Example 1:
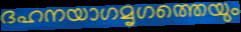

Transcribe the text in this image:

ദഹനയാഗമൃഗത്തെയും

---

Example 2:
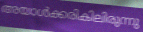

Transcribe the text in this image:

അയാൾക്കരികിലിരുന്നു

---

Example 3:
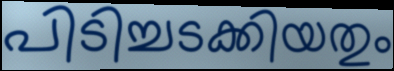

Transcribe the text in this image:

പിടിച്ചടക്കിയതും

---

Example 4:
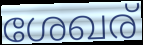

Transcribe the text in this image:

ശേഖര്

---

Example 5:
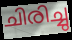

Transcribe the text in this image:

ചിരിച്ചു